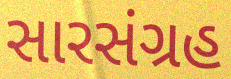
સારસંગ્રહ